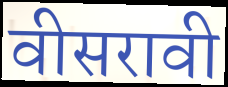
वीसरावी